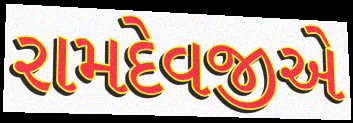
રામદેવજીએ